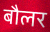
बौलर